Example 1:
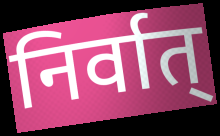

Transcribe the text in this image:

निर्वात्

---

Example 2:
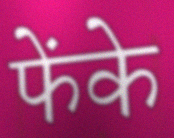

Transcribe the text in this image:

फेंके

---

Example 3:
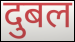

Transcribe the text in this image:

दुबल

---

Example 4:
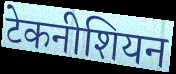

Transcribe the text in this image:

टेकनीशियन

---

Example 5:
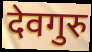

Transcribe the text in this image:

देवगुरु